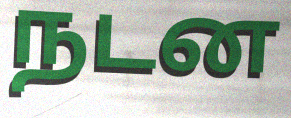
நடன